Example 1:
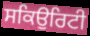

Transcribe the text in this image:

ਸਕਿਉਰਿਟੀ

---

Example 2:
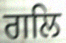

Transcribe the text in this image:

ਗਲਿ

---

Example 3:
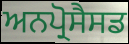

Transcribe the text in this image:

ਅਨਪ੍ਰੋਸੈਸਡ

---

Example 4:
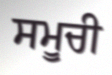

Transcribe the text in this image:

ਸਮੂਚੀ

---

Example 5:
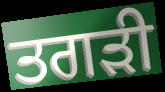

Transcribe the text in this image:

ਤਗੜੀ